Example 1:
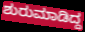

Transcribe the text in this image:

ಶುರುಮಾಡಿದ್ದ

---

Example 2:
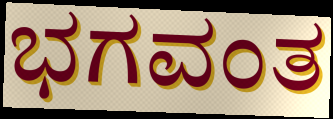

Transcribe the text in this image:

ಭಗವಂತ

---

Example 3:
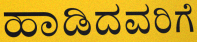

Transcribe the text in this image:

ಹಾಡಿದವರಿಗೆ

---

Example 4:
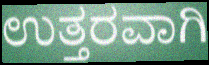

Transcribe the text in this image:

ಉತ್ತರವಾಗಿ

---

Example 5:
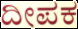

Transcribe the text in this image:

ದೀಪಕ